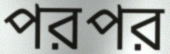
পরপর